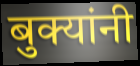
बुक्यांनी